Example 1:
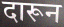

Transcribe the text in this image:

दारून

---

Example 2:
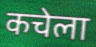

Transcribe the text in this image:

कचेला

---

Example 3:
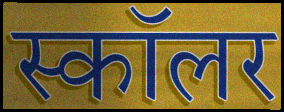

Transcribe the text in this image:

स्कॉलर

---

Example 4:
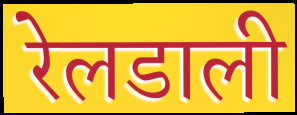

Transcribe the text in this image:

रेलडाली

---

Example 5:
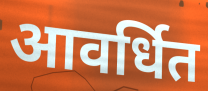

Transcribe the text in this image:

आवर्धित